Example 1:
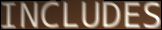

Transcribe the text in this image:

INCLUDES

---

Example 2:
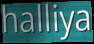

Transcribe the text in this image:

halliya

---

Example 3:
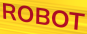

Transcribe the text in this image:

ROBOT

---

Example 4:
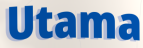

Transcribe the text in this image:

Utama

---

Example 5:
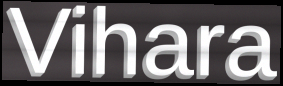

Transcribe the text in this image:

Vihara